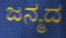
ಜನ್ಮದ